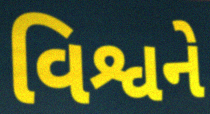
વિશ્વને